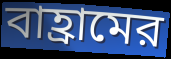
বাহ্রামের